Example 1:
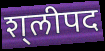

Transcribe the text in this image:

श्लीपद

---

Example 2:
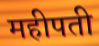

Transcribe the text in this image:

महीपती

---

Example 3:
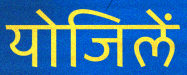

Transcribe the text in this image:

योजिलें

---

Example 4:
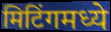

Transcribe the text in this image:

मिटिंगमध्ये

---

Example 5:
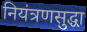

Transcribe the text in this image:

नियंत्रणसुद्धा